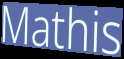
Mathis